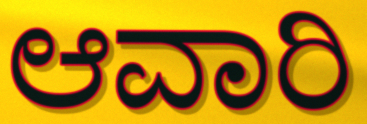
ಆವಾರಿ